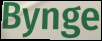
Bynge